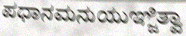
ಪಧಾನಮನುಯುಞ್ಜಿತ್ವಾ